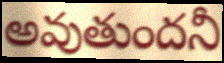
అవుతుందనీ